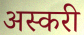
अस्करी